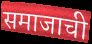
समाजाची